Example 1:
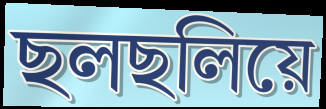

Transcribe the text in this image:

ছলছলিয়ে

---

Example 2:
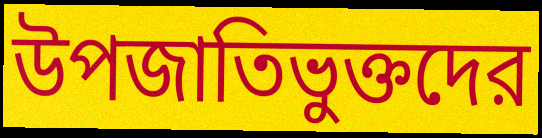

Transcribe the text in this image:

উপজাতিভুক্তদের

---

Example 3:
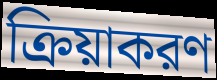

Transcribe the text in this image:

ক্রিয়াকরণ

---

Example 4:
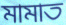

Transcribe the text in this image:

মামাত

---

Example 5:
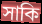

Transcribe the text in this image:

সাকি